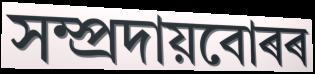
সম্প্ৰদায়বোৰৰ